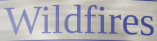
Wildfires